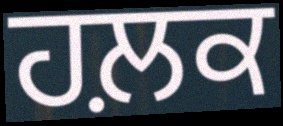
ਹਲ਼ਕ